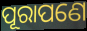
ପୂରାପଣେ